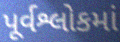
પૂર્વશ્લોકમાં